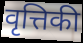
वृत्तिकी